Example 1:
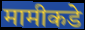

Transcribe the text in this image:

मामीकडे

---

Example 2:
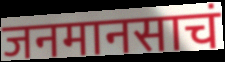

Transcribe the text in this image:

जनमानसाचं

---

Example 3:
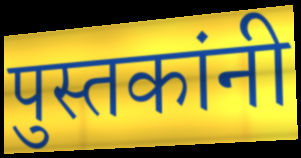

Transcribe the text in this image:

पुस्तकांनी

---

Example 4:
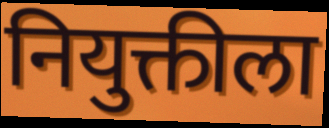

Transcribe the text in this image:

नियुक्तीला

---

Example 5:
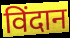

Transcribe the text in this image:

विंदान